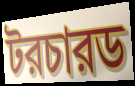
টরচারড